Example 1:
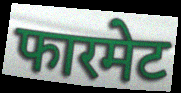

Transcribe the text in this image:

फारमेट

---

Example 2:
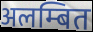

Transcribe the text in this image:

अलम्बित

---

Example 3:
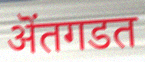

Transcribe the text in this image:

ऄंतगडत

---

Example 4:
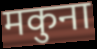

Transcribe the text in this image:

मकुना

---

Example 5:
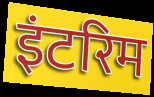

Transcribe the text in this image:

इंटरिम